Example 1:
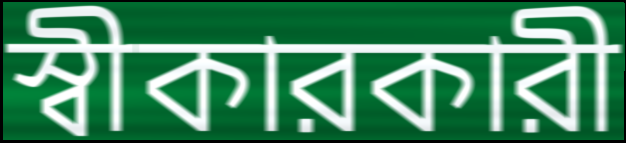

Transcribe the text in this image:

স্বীকারকারী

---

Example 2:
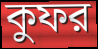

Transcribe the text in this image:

কুফর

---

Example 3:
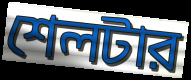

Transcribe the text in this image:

শেলটার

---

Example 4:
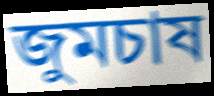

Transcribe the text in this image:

জুমচাষ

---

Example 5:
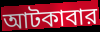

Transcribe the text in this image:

আটকাবার